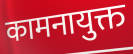
कामनायुक्त